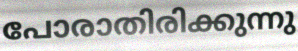
പോരാതിരിക്കുന്നു